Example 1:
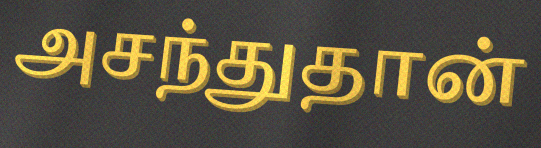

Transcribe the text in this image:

அசந்துதான்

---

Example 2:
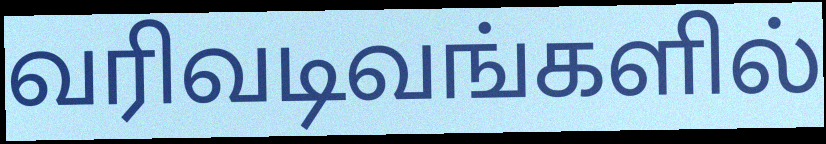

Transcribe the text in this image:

வரிவடிவங்களில்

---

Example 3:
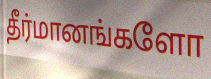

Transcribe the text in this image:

தீர்மானங்களோ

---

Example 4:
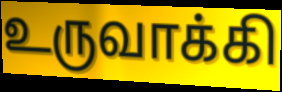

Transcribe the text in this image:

உருவாக்கி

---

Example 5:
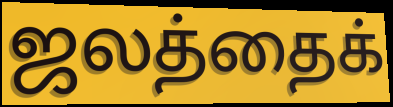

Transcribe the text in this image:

ஜலத்தைக்